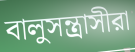
বালুসন্ত্রাসীরা